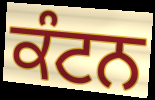
ਕੰਟਨ